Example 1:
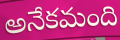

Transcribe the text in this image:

అనేకమంది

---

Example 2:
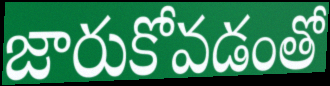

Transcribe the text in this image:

జారుకోవడంతో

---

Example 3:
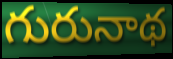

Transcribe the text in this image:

గురునాథ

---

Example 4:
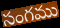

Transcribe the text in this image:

సంగము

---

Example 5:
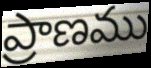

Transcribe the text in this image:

ప్రాణము